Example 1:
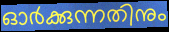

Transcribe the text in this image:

ഓർക്കുന്നതിനും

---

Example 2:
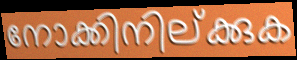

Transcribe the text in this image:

നോക്കിനില്ക്കുക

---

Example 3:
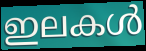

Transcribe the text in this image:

ഇലകൾ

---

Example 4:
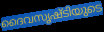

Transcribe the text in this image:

ദൈവസൃഷ്ടിയുടെ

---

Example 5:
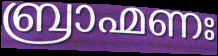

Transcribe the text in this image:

ബ്രാഹ്മണഃ